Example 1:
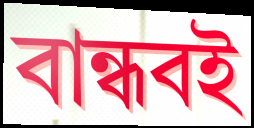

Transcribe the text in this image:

বান্ধবই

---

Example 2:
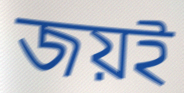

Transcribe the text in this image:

জয়ই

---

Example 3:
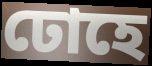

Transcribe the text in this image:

ঢোহে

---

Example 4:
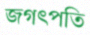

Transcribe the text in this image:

জগৎপতি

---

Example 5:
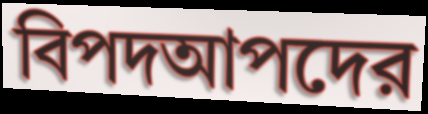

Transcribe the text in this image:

বিপদআপদের